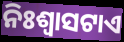
ନିଃଶ୍ଵାସଟାଏ